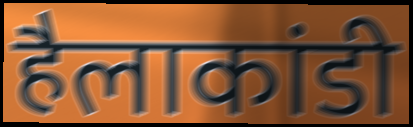
हैलाकांडी